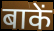
बाकें